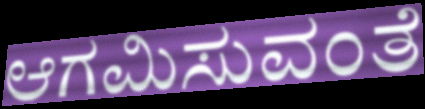
ಆಗಮಿಸುವಂತೆ